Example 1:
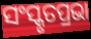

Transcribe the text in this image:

ସଂସ୍କୃତପ୍ରଭା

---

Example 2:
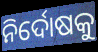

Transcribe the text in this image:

ନିର୍ଦୋଷକୁ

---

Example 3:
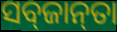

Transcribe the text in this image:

ସବ୍‌ଜାନ୍‌ତା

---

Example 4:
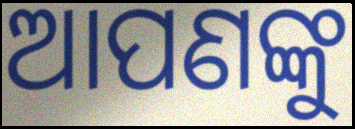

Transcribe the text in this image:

ଆପଣଙ୍କୁ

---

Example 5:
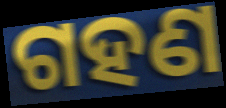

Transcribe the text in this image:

ଗହଣ